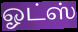
ஓட்ஸ்